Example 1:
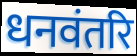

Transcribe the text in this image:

धनवंतरि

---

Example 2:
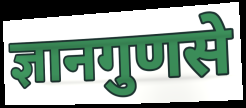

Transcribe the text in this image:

ज्ञानगुणसे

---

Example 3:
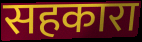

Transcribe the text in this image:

सहकारा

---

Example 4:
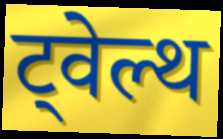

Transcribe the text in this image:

ट्वेल्थ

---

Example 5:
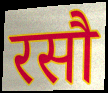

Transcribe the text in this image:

रसौ